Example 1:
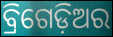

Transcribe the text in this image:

ବ୍ରିଗେଡ଼ିଅର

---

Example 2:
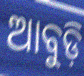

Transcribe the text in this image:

ଆବୁଡ଼ି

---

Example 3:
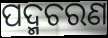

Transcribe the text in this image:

ପଦ୍ମଚରଣ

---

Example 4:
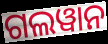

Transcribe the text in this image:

ଗଲୱାନ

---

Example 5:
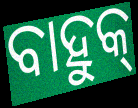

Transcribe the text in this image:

ବାହୁକ୍